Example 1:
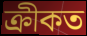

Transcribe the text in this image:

ক্ৰীকত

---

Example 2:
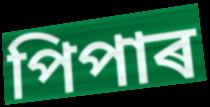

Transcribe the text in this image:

পিপাৰ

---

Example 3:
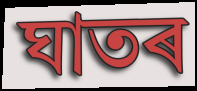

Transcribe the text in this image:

ঘাতৰ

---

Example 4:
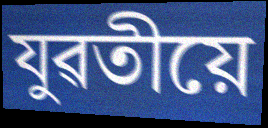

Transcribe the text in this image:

যুৱতীয়ে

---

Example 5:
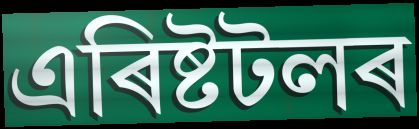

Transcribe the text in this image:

এৰিষ্টটলৰ